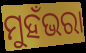
ମୁହଁଭରା